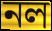
নল